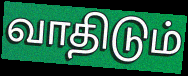
வாதிடும்